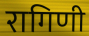
रागिणी